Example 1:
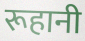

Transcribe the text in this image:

रूहानी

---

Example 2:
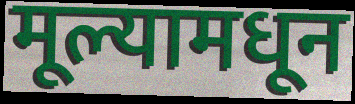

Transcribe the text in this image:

मूल्यामधून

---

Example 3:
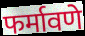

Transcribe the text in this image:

फर्मावणे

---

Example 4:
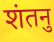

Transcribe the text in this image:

शंतनु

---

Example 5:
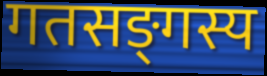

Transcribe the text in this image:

गतसङ्गस्य